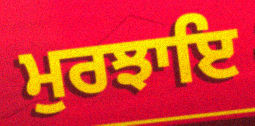
ਮੁਰਝਾਇ